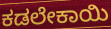
ಕಡಲೇಕಾಯಿ